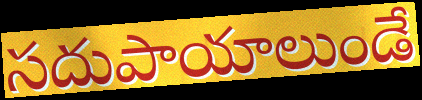
సదుపాయాలుండే